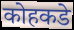
कोहकडे